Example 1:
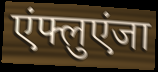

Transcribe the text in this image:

एंफ्लुएंजा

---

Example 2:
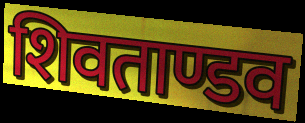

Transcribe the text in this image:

शिवताण्डव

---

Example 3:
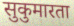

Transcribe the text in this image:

सुकुमारता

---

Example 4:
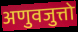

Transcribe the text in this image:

अणुवजुत्तो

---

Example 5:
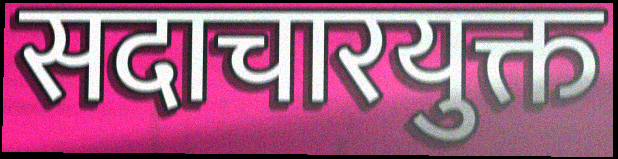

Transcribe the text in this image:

सदाचारयुक्त